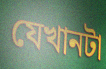
যেখানটা